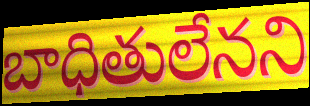
బాధితులేనని